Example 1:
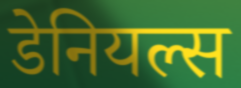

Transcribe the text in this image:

डेनियल्स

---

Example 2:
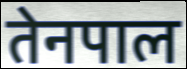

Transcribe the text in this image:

तेनपाल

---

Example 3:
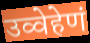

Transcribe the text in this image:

उव्वेहेणं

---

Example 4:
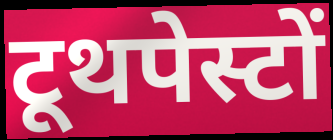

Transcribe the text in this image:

टूथपेस्टों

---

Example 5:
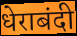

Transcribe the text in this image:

धेराबंदी